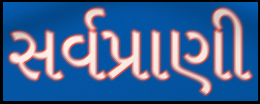
સર્વપ્રાણી